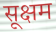
सूक्षम